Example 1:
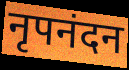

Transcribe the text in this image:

नृपनंदन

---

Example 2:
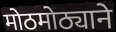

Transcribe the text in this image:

मोठमोठ्याने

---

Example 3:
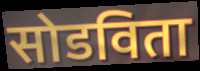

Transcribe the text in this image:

सोडविता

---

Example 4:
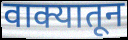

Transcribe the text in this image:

वाक्यातून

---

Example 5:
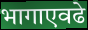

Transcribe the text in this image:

भागाएवढे